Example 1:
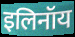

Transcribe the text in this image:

इलिनॉय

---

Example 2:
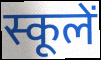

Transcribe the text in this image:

स्कूलें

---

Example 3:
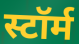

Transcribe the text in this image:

स्टॉर्म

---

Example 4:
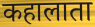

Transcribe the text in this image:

कहालाता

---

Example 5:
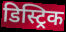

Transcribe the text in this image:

डिस्ट्रिक